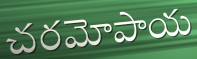
చరమోపాయ